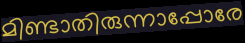
മിണ്ടാതിരുന്നാപ്പോരേ